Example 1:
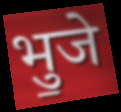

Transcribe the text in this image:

भु॒जे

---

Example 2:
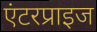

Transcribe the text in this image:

एंटरप्राइज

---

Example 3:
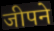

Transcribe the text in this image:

जीपने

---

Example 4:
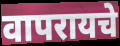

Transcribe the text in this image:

वापरायचे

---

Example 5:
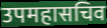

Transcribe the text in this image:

उपमहासचिव